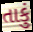
તાકું